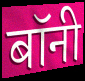
बॉनी